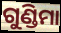
ଗୁଣ୍ଡିମା